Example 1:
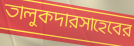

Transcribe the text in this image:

তালুকদারসাহেবের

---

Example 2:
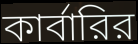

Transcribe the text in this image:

কার্বারির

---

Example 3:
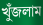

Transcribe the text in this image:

খুঁজলাম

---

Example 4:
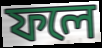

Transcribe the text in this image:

ফলে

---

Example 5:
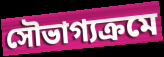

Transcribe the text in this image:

সৌভাগ্যক্রমে